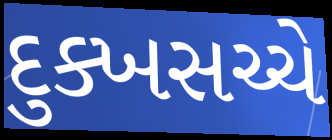
દુક્ખસચ્ચે